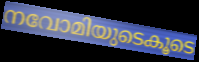
നവോമിയുടെകൂടെ